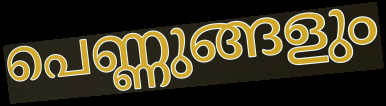
പെണ്ണുങ്ങളും